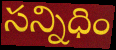
సన్నిధిం